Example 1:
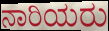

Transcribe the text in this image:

ನಾರಿಯರು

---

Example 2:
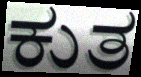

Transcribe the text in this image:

ಕುತ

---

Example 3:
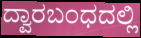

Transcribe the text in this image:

ದ್ವಾರಬಂಧದಲ್ಲಿ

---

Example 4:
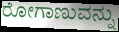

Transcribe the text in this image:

ರೋಗಾಣುವನ್ನು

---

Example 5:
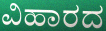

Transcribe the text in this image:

ವಿಹಾರದ